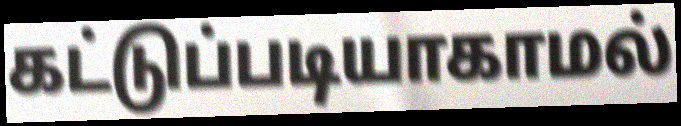
கட்டுப்படியாகாமல்